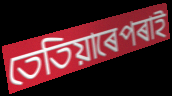
তেতিয়াৰেপৰাই